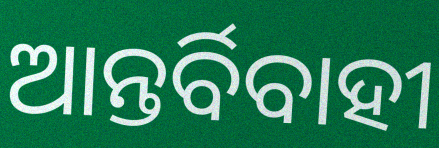
ଆନ୍ତର୍ବିବାହୀ